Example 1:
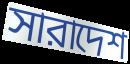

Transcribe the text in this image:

সারাদেশ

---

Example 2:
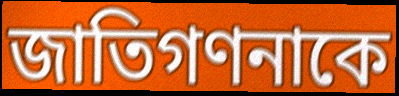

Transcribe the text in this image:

জাতিগণনাকে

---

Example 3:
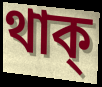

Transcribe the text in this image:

থাক্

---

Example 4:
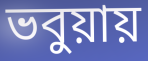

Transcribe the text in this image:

ভবুয়ায়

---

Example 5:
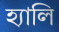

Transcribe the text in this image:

হ্যালি